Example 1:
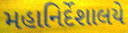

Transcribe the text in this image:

મહાનિર્દેશાલયે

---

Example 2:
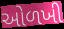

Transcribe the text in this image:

ઓળખી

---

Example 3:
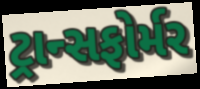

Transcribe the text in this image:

ટ્રાન્સફોર્મર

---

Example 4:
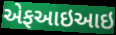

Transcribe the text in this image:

એફઆઇઆઇ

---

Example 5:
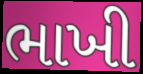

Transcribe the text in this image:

ભાખી